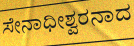
ಸೇನಾಧೀಶ್ವರನಾದ